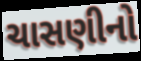
ચાસણીનો